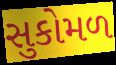
સુકોમળ